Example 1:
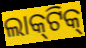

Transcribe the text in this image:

ଲାକ୍‌ଟିକ୍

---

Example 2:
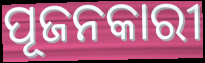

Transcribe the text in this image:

ପୂଜନକାରୀ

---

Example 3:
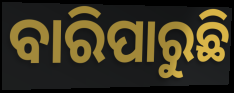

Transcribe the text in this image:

ବାରିପାରୁଛି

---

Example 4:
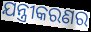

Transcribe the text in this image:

ଯନ୍ତ୍ରୀକରଣର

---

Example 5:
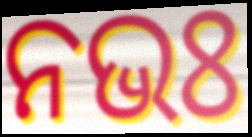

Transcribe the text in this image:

ନଭଃ